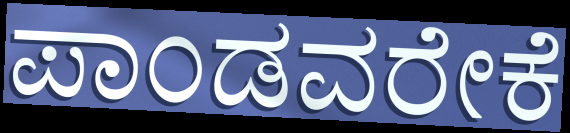
ಪಾಂಡವರೇಕೆ